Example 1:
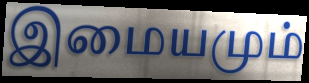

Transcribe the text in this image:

இமையமும்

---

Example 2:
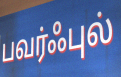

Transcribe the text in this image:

பவர்ஃபுல்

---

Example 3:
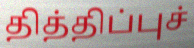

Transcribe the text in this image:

தித்திப்புச்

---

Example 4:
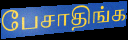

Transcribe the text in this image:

பேசாதிங்க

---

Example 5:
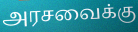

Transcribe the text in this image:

அரசவைக்கு